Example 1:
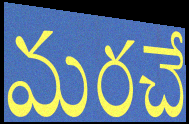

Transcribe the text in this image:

మరచే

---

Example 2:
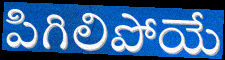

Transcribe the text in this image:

పిగిలిపోయే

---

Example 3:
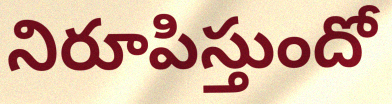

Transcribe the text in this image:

నిరూపిస్తుందో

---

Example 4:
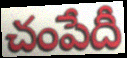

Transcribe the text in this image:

చంపేదీ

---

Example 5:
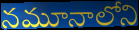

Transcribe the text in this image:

నమూనాలోని